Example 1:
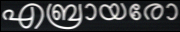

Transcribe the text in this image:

എബ്രായരോ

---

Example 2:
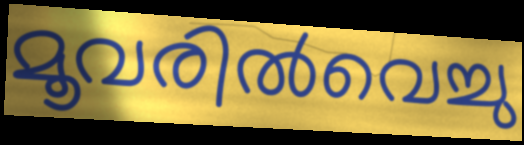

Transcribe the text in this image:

മൂവരിൽവെച്ചു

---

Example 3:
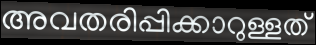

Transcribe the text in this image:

അവതരിപ്പിക്കാറുള്ളത്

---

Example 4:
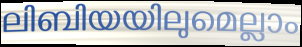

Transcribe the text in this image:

ലിബിയയിലുമെല്ലാം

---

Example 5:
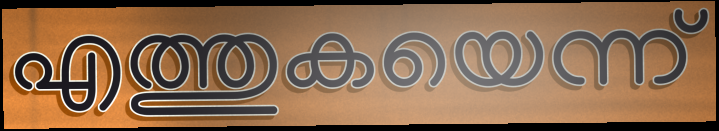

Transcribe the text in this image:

എത്തുകയെന്ന്